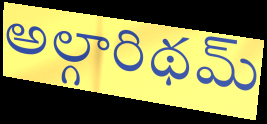
అల్గారిథమ్